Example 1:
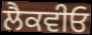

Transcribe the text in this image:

ਲੈਕਵੀਓ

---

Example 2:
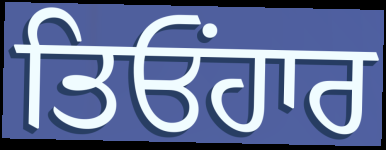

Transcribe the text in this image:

ਤਿਓਂਹਾਰ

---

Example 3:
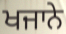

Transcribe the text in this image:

ਖਜਾਨੇ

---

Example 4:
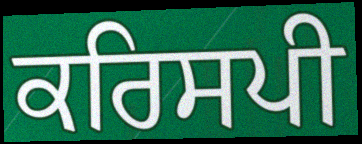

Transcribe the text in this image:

ਕਰਿਸਪੀ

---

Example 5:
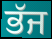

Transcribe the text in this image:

ਭੱਜ